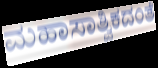
ಮಹಾಸಾತ್ವಿಕದಂತೆ